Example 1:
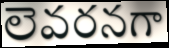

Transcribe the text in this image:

లెవరనగా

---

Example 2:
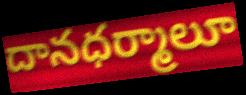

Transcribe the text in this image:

దానధర్మాలూ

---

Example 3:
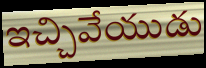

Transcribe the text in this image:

ఇచ్చివేయుడు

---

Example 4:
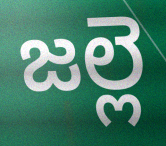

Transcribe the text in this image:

జల్లె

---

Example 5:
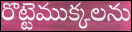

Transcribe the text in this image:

రొట్టెముక్కలను